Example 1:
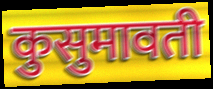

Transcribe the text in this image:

कुसुमावती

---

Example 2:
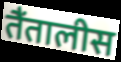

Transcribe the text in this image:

तैंतालीस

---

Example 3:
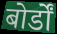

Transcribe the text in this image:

बोर्डों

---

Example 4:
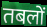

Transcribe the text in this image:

तबलों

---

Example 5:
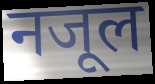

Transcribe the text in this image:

नजूल